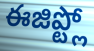
ఈజిప్ట్లో